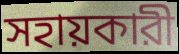
সহায়কারী